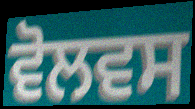
ਵੋਲਵਸ